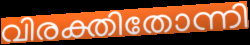
വിരക്തിതോന്നി